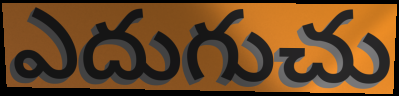
ఎదుగుచు